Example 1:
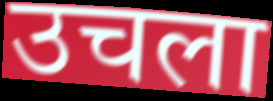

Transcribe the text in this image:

उचला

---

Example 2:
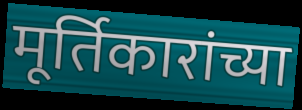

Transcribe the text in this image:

मूर्तिकारांच्या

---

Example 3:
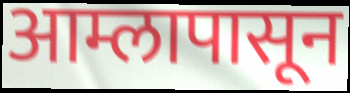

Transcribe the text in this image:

आम्लापासून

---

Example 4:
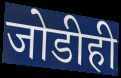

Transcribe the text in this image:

जोडीही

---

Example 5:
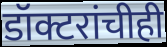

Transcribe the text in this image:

डॉक्टरांचीही